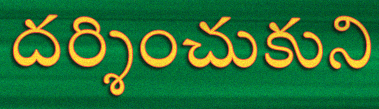
దర్శించుకుని